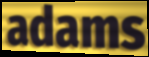
adams